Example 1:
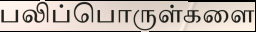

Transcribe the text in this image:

பலிப்பொருள்களை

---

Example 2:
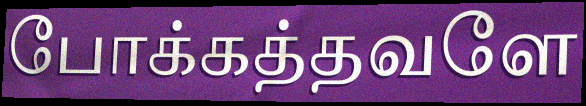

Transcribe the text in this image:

போக்கத்தவளே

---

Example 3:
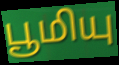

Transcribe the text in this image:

பூமியு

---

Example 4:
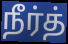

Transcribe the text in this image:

நீர்த்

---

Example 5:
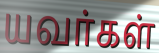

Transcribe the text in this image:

யவர்கள்